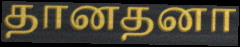
தானதனா